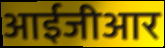
आईजीआर